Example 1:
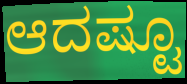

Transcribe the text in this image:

ಆದಷ್ಟೂ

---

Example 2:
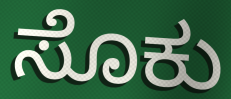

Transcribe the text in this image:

ಸೊಕು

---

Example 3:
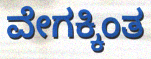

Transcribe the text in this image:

ವೇಗಕ್ಕಿಂತ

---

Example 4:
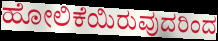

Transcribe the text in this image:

ಹೋಲಿಕೆಯಿರುವುದರಿಂದ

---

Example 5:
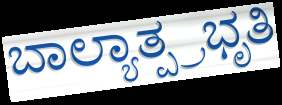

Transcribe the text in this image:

ಬಾಲ್ಯಾತ್ಪ್ರಭೃತಿ